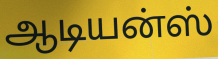
ஆடியன்ஸ்